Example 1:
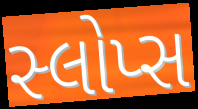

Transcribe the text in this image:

સ્લોપ્સ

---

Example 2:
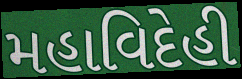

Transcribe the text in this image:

મહાવિદેહી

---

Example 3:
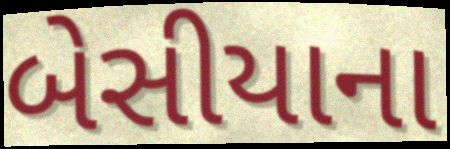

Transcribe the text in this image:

બેસીયાના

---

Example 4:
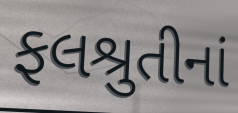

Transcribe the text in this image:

ફલશ્રુતીનાં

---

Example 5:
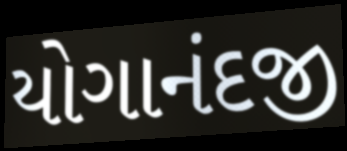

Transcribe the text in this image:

યોગાનંદજી